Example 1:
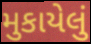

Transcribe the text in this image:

મુકાયેલું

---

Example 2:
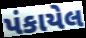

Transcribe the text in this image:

પંકાયેલ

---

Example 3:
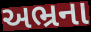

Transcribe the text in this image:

અભ્રના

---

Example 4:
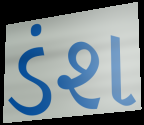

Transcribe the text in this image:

ડંશ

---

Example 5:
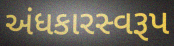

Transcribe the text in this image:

અંધકારસ્વરૂપ